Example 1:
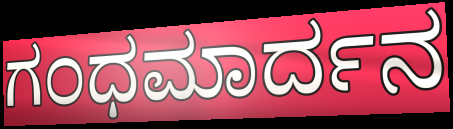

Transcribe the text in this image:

ಗಂಧಮಾರ್ದನ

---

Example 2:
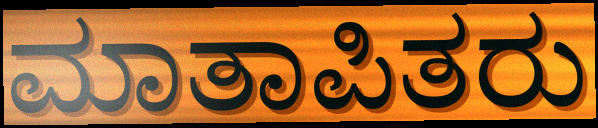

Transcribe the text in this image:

ಮಾತಾಪಿತರು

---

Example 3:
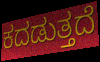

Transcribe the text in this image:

ಕದಡುತ್ತದೆ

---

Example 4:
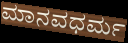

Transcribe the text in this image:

ಮಾನವಧರ್ಮ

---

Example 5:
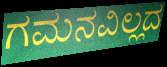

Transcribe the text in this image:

ಗಮನವಿಲ್ಲದ